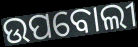
ଉପବୋଲୀ